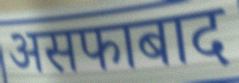
असफाबाद